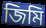
জিমি